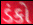
ડંકો